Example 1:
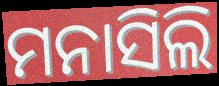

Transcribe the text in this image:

ମନାସିଲି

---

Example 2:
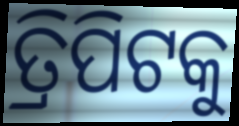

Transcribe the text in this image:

ତ୍ରିପିଟକୁ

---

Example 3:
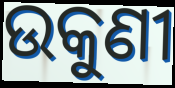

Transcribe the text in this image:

ଉକୁଣୀ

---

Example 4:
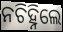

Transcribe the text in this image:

ନଚିହ୍ନିଲେ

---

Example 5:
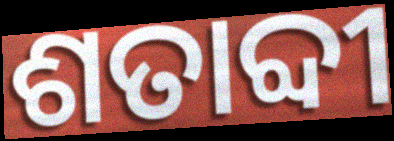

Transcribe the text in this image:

ଶତାବ୍ଦୀ